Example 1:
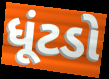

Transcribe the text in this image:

ધૂંટડો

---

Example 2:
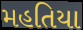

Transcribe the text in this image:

મહતિયા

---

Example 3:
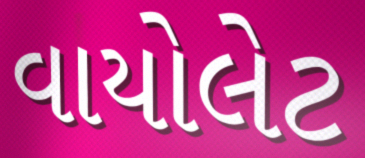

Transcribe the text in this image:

વાયોલેટ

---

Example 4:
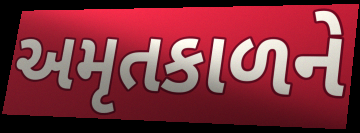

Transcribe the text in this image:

અમૃતકાળને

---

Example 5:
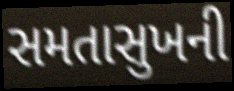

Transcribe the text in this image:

સમતાસુખની